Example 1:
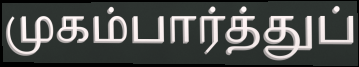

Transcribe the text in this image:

முகம்பார்த்துப்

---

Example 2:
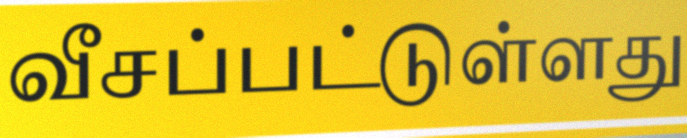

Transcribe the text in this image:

வீசப்பட்டுள்ளது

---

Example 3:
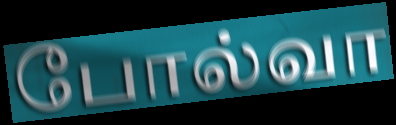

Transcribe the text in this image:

போல்வா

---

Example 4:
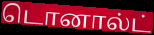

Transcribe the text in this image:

டொனால்ட்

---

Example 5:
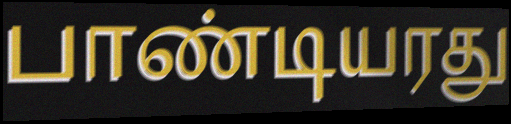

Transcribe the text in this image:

பாண்டியரது